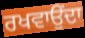
ਰਖਵਾਉਂਦਾ